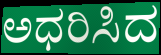
ಅಧರಿಸಿದ